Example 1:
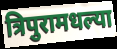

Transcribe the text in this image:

त्रिपुरामधल्या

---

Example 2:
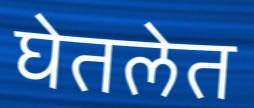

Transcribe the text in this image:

घेतलेत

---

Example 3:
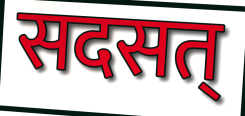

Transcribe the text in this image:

सदसत्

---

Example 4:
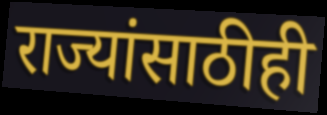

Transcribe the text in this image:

राज्यांसाठीही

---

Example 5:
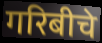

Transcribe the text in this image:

गरिबीचे